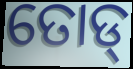
ତୋଡ୍